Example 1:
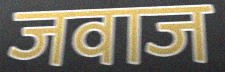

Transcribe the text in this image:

जवाज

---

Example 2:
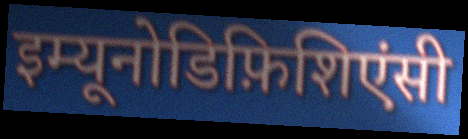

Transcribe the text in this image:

इम्यूनोडिफ़िशिएंसी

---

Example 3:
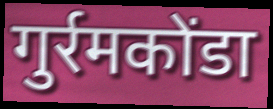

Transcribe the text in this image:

गुर्रमकोंडा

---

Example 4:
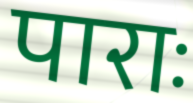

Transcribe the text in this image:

पाराः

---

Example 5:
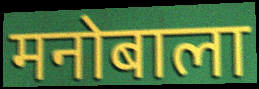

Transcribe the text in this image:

मनोबाला